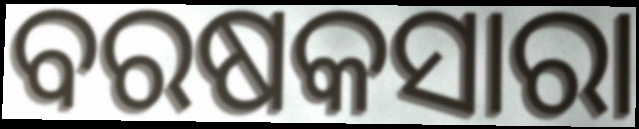
ବରଷକସାରା